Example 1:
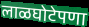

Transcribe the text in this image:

लाळघोटेपणा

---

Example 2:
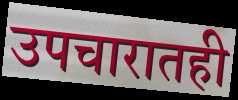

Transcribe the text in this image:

उपचारातही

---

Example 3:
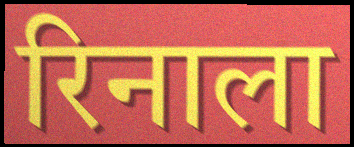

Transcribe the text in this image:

रिनाला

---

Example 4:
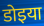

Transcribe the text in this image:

डोइया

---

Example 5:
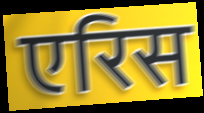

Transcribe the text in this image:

एरिस